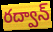
రద్వాన్